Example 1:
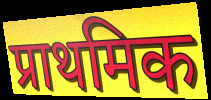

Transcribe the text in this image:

प्राथमिक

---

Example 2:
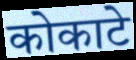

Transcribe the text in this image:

कोकाटे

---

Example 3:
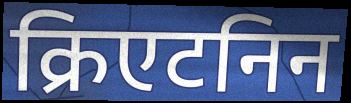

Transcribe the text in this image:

क्रिएटनिन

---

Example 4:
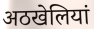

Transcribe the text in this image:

अठखेलियां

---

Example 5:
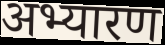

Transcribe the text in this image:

अभ्यारण